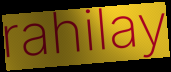
rahilay